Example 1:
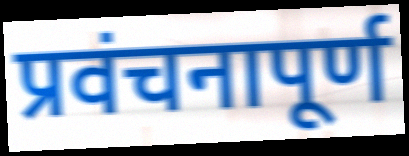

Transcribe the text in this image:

प्रवंचनापूर्ण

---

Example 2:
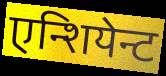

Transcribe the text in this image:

एन्शियेन्ट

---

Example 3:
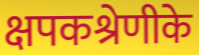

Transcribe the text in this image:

क्षपकश्रेणीके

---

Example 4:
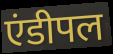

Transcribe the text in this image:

एंडीपल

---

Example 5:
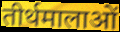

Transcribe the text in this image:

तीर्थमालाओं